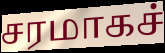
சரமாகச்